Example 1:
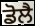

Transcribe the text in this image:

ਡੋਲੈ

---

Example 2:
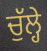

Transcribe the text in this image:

ਚੁੱਲ੍ਹੇ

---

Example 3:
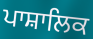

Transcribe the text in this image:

ਪਾਸ਼ਾਲਿਕ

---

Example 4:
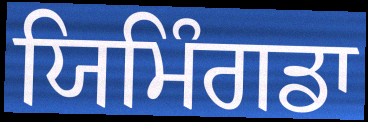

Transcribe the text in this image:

ਯਿਮਿੰਗਡਾ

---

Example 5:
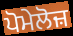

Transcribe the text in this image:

ਪੋਮੇਲੋਜ਼